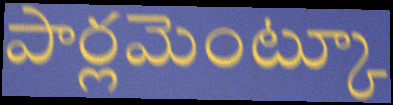
పార్లమెంట్కూ